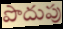
పొదుపు